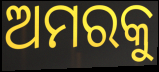
ଅମରକୁ